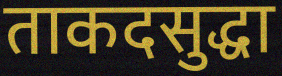
ताकदसुद्धा